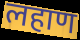
लहाण